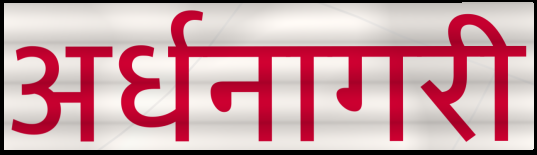
अर्धनागरी